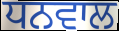
ਧਨਵਾਲ